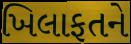
ખિલાફતને